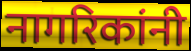
नागरिकांनी